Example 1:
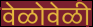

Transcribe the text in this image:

वेळोवेळी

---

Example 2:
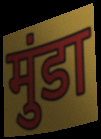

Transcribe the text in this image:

मुंडा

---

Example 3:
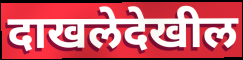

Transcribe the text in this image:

दाखलेदेखील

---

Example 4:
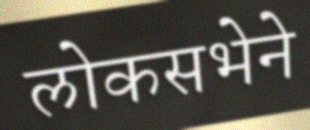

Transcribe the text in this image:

लोकसभेने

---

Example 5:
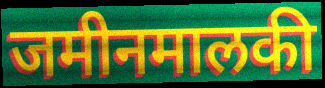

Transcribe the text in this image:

जमीनमालकी